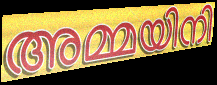
അമ്മയിനി